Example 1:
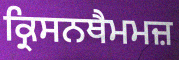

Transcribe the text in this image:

ਕ੍ਰਿਸਨਥੈਮਮਜ਼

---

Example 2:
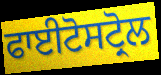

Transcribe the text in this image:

ਫਾਈਟੋਸਟ੍ਰੋਲ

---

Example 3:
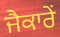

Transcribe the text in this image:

ਜੈਕਾਰੇਂ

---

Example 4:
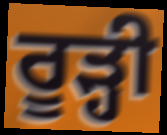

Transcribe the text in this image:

ਰੂੜ੍ਹੀ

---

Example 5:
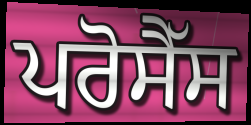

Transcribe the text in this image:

ਪਰੋਸੈੱਸ